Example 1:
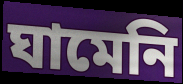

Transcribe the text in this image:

ঘামেনি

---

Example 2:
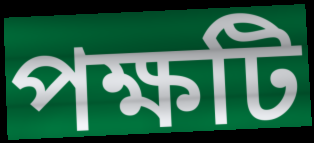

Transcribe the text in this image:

পক্ষটি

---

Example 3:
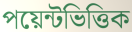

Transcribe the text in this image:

পয়েন্টভিত্তিক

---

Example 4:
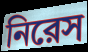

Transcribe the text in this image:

নিরেস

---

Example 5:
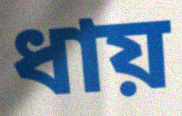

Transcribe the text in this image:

ধায়